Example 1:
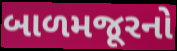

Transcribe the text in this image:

બાળમજૂરનો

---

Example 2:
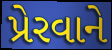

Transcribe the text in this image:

પ્રેરવાને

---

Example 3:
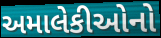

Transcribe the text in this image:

અમાલેકીઓનો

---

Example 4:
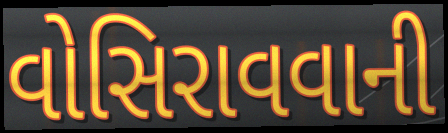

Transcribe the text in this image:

વોસિરાવવાની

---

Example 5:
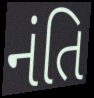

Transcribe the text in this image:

નંતિ